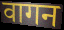
वागन